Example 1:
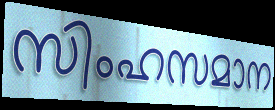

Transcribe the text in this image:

സിംഹസമാന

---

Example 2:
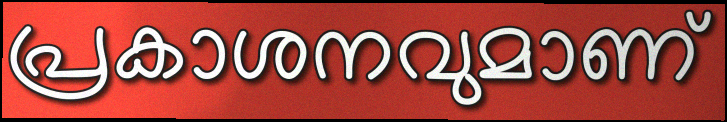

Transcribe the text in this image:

പ്രകാശനവുമാണ്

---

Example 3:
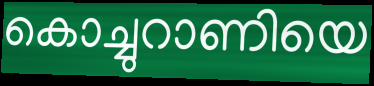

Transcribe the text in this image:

കൊച്ചുറാണിയെ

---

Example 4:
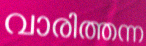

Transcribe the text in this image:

വാരിത്തന്ന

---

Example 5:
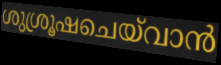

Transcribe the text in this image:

ശുശ്രൂഷചെയ്‌വാൻ